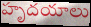
హృదయాలు